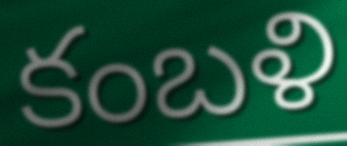
కంబళి